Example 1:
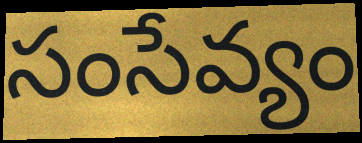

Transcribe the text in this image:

సంసేవ్యం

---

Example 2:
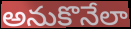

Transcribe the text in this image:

అనుకొనేలా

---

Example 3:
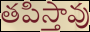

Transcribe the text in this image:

తపిస్తావు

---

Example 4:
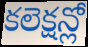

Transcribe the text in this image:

కలెక్షన్లో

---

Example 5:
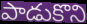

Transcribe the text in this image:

పాడుకొని